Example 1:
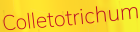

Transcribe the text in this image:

Colletotrichum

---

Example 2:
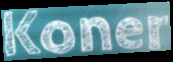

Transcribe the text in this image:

Koner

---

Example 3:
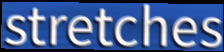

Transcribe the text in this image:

stretches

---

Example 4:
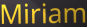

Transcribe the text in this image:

Miriam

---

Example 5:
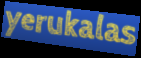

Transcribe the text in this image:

yerukalas